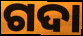
ଗଦା